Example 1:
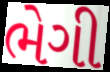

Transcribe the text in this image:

ભેગી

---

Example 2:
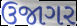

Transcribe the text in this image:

ઉજાગર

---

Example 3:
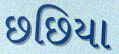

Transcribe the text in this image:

છછિયા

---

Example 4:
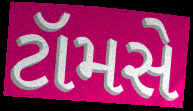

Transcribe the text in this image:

ટૉમસે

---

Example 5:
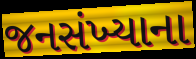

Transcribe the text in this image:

જનસંખ્યાના